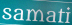
samati